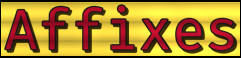
Affixes